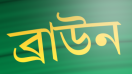
ব্রাউন